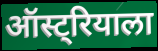
ऑस्ट्रियाला